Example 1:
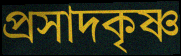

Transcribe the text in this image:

প্রসাদকৃষ্ণ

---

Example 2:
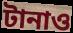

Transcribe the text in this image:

টানাও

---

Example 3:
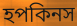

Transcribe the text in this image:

হপকিনস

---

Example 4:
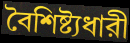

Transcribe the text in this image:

বৈশিষ্ট্যধারী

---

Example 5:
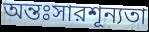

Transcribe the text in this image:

অন্তঃসারশূন্যতা